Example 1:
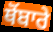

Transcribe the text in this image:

ਥੋਂਬਾਰੇ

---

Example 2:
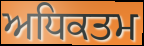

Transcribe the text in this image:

ਅਧਿਕਤਮ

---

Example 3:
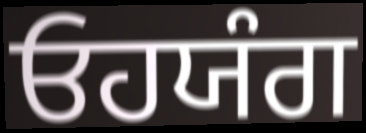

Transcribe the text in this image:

ਓਹਯੰਗ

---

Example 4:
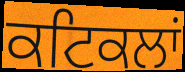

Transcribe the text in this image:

ਕਟਿਕਲਾਂ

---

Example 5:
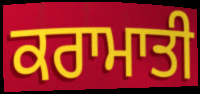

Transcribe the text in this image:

ਕਰਾਮਾਤੀ